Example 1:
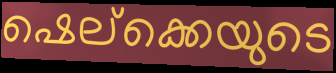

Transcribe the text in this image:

ഷെല്ക്കെയുടെ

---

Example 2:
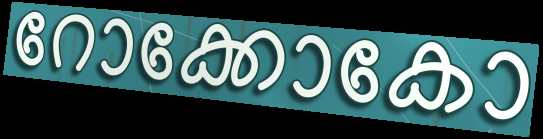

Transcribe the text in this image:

റോക്കോകോ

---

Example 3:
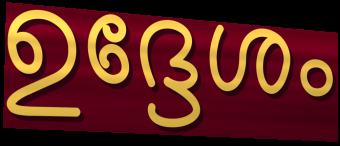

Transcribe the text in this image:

ഉദ്ദേശം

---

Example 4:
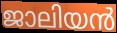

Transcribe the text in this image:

ജാലിയൻ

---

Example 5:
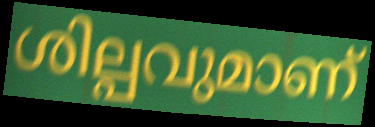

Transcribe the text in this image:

ശില്പവുമാണ്